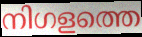
നിഗളത്തെ